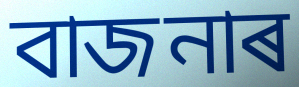
বাজনাৰ